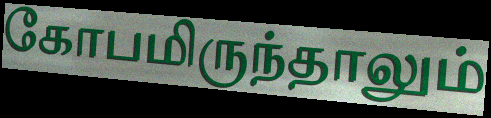
கோபமிருந்தாலும்